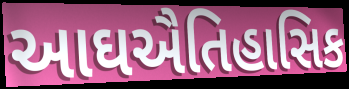
આઘઐતિહાસિક